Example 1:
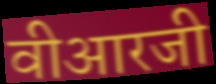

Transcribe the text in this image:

वीआरजी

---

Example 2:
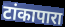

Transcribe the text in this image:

टांकापारा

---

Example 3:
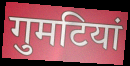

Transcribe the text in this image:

गुमटियां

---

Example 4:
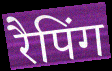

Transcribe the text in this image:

रैपिंग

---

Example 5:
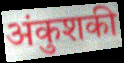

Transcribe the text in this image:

अंकुशकी